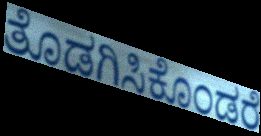
ತೊಡಗಿಸಿಕೊಂಡರೆ